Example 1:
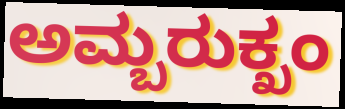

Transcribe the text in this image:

ಅಮ್ಬರುಕ್ಖಂ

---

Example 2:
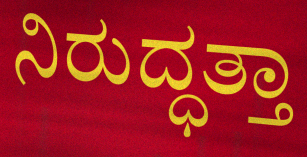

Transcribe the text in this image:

ನಿರುದ್ಧತ್ತಾ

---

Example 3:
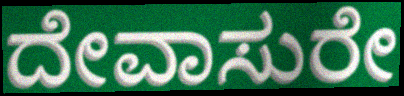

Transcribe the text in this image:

ದೇವಾಸುರೇ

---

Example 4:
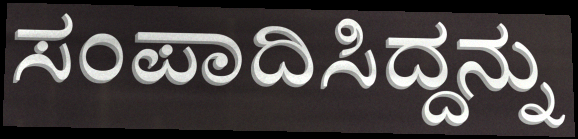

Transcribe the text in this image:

ಸಂಪಾದಿಸಿದ್ದನ್ನು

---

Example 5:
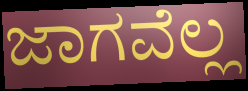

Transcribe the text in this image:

ಜಾಗವೆಲ್ಲ